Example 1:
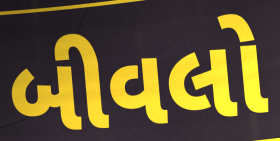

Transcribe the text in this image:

બીવલો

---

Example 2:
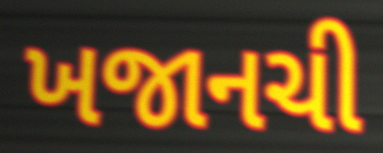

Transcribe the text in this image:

ખજાનચી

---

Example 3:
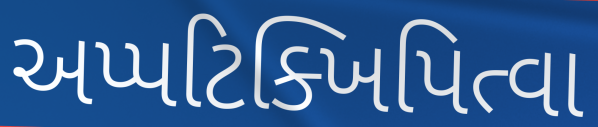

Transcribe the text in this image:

અપ્પટિક્ખિપિત્વા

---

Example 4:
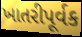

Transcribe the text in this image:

ખાતરીપૂર્વક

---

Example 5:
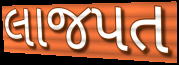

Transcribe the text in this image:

લાજપત